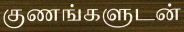
குணங்களுடன்